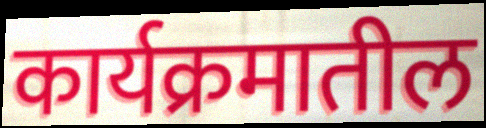
कार्यक्रमातील